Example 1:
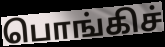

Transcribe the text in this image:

பொங்கிச்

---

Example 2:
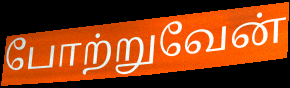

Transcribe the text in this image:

போற்றுவேன்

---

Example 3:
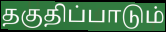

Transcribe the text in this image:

தகுதிப்பாடும்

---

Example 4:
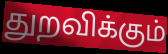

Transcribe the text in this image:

துறவிக்கும்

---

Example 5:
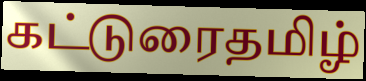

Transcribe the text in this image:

கட்டுரைதமிழ்